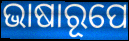
ଭାଷାରୂପେ